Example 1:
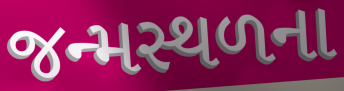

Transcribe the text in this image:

જન્મસ્થળના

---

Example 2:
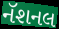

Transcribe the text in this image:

નૅશનલ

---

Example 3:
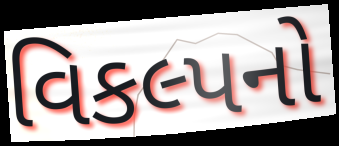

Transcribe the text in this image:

વિકલ્પનો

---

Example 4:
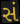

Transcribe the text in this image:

સં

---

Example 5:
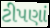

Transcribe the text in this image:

ટીપણાં